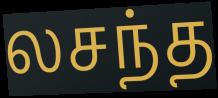
லசந்த